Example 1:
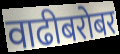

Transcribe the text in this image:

वाढीबरोबर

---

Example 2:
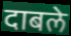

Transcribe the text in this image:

दाबले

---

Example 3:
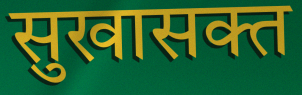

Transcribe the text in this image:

सुखासक्त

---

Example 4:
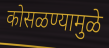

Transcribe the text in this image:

कोसळण्यामुळे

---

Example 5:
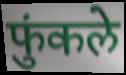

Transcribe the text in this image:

फुंकले